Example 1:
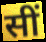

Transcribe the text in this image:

सीं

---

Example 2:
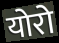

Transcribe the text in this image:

योरो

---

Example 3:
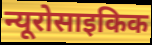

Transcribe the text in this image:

न्यूरोसाइकिक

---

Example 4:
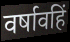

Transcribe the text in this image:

वर्षावहिं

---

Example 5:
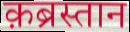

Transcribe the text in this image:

क़ब्रस्तान